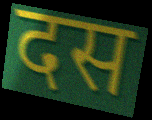
दस